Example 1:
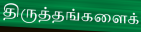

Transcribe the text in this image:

திருத்தங்களைக்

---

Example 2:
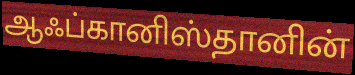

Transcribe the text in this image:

ஆஃப்கானிஸ்தானின்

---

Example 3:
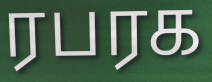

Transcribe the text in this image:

ரபரக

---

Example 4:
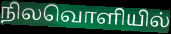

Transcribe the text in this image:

நிலவொளியில்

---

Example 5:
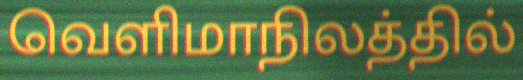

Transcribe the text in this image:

வெளிமாநிலத்தில்